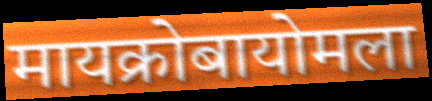
मायक्रोबायोमला